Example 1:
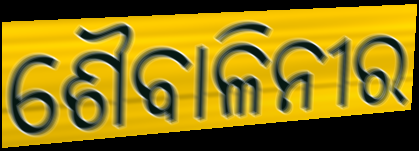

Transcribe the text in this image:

ଶୈବାଳିନୀର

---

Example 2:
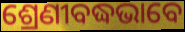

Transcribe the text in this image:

ଶ୍ରେଣୀବଦ୍ଧଭାବେ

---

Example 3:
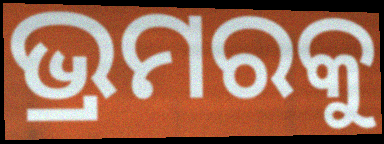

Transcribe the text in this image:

ଭ୍ରମରକୁ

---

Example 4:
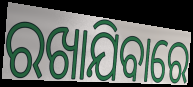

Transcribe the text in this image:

ରଖାଯିବାରେ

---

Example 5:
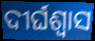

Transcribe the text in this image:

ଦୀର୍ଘଶ୍ଵାସ